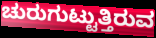
ಚುರುಗುಟ್ಟುತ್ತಿರುವ